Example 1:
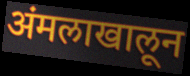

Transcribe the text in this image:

अंमलाखालून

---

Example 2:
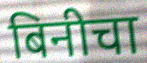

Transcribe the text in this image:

बिनीचा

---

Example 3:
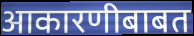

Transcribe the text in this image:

आकारणीबाबत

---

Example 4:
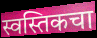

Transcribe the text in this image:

स्वस्तिकचा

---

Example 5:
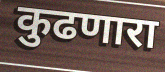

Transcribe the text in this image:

कुढणारा